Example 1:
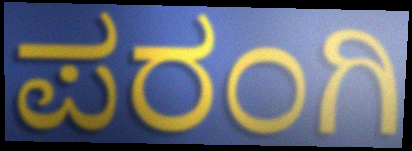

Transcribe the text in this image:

ಪರಂಗಿ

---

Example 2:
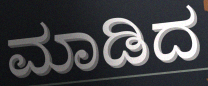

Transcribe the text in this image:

ಮಾಡಿದ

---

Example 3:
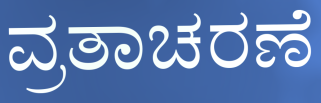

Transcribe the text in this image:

ವ್ರತಾಚರಣೆ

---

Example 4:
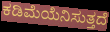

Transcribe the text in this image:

ಕಡಿಮೆಯೆನಿಸುತ್ತದೆ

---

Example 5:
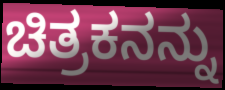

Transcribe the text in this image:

ಚಿತ್ರಕನನ್ನು